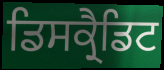
ਡਿਸਕ੍ਰੈਡਿਟ